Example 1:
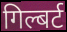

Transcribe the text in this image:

गिल्बर्ट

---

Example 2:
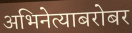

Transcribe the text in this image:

अभिनेत्याबरोबर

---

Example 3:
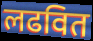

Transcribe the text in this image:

लढवित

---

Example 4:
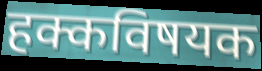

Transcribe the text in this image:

हक्कविषयक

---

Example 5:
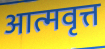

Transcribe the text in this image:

आत्मवृत्त